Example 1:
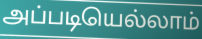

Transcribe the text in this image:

அப்படியெல்லாம்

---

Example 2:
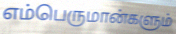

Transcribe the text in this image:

எம்பெருமான்களும்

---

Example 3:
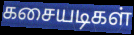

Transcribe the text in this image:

கசையடிகள்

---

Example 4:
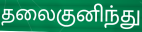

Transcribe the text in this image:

தலைகுனிந்து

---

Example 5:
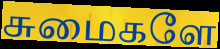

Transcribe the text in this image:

சுமைகளே